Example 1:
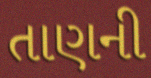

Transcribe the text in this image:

તાણની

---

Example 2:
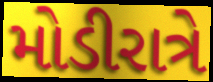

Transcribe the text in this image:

મોડીરાત્રે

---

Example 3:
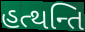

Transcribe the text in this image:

હત્થન્તિ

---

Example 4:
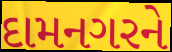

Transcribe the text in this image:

દામનગરને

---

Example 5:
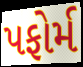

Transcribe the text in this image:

પફોર્મ